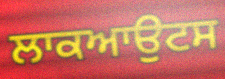
ਲਾਕਆਉਟਸ